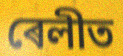
ৰেলীত